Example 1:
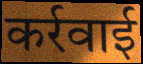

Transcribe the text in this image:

कर्रवाई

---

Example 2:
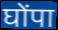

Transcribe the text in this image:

घोंपा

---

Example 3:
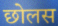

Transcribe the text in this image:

छोलस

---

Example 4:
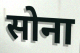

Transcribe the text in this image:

सोना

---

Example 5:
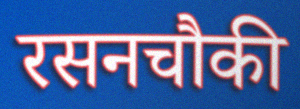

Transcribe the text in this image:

रसनचौकी